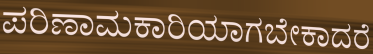
ಪರಿಣಾಮಕಾರಿಯಾಗಬೇಕಾದರೆ